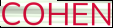
COHEN